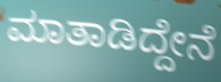
ಮಾತಾಡಿದ್ದೇನೆ